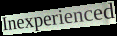
Inexperienced